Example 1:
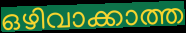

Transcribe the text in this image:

ഒഴിവാക്കാത്ത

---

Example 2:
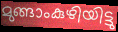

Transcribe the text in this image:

മുങ്ങാംകുഴിയിട്ടു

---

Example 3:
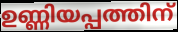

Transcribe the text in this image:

ഉണ്ണിയപ്പത്തിന്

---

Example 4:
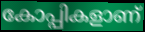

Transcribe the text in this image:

കോപ്പികളാണ്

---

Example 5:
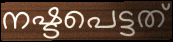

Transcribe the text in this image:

നഷ്ടപെട്ടത്